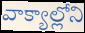
వాక్యాల్లోని